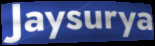
Jaysurya